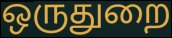
ஒருதுறை